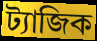
ট্যাজিক